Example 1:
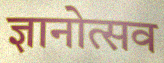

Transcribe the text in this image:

ज्ञानोत्सव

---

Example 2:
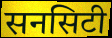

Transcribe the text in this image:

सनसिटी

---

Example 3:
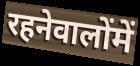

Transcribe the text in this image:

रहनेवालोंमें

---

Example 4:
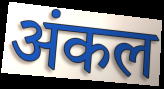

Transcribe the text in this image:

अंकल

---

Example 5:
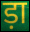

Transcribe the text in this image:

ड़ा